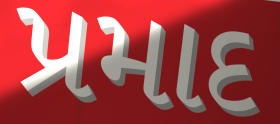
પ્રમાદ